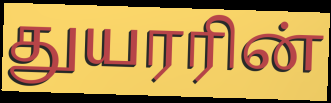
துயரரின்